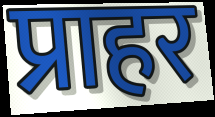
प्राहर